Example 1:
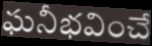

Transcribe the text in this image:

ఘనీభవించే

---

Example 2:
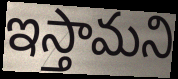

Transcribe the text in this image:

ఇస్తామని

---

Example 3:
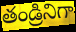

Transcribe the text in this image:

తండ్రినిగా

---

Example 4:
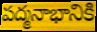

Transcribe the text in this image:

పద్మనాభానికి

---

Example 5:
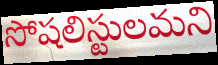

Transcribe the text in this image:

సోషలిస్టులమని